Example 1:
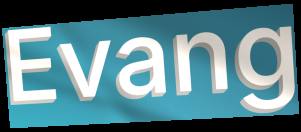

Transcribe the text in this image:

Evang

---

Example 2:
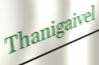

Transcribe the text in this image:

Thanigaivel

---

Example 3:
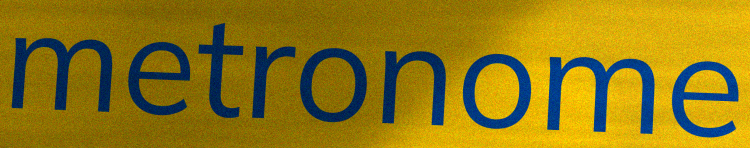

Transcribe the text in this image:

metronome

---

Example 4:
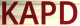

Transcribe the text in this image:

KAPD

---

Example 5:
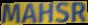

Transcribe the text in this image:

MAHSR